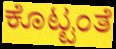
ಕೊಟ್ಟಂತೆ